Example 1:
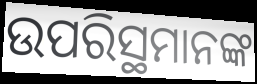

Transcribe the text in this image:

ଉପରିସ୍ଥମାନଙ୍କ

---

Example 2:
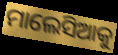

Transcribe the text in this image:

ମାଲେସିଆକୁ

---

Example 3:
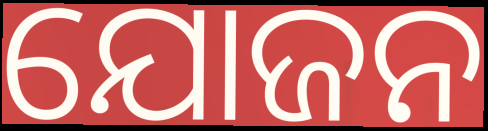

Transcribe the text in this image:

ଯୋଜନ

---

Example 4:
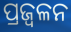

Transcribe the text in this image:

ପ୍ରଜ୍ବଳନ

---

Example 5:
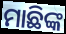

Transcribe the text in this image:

ମାଛିଙ୍କ